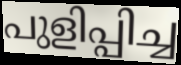
പുളിപ്പിച്ച